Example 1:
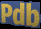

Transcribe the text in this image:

Pdb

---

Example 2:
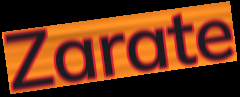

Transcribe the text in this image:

Zarate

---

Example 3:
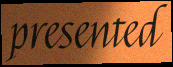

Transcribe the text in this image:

presented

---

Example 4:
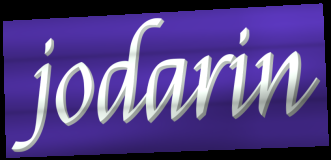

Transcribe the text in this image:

jodarin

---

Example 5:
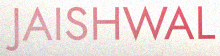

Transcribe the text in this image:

JAISHWAL